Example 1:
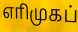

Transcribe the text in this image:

எரிமுகப்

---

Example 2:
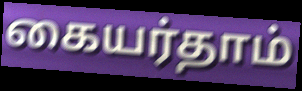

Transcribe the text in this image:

கையர்தாம்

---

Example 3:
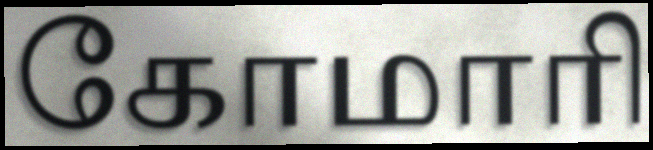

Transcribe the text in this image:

கோமாரி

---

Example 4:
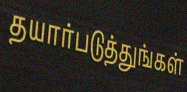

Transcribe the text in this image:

தயார்படுத்துங்கள்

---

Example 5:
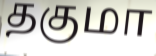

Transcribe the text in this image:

தகுமா